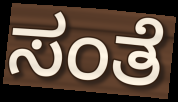
ಸಂತೆ